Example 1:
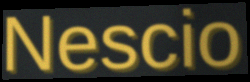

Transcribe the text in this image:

Nescio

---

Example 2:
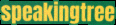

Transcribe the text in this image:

speakingtree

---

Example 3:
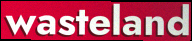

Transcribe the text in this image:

wasteland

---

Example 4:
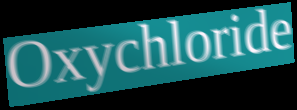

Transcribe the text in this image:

Oxychloride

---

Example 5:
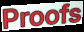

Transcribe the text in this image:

Proofs